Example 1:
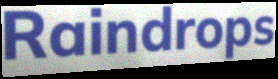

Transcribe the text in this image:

Raindrops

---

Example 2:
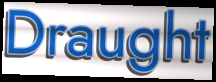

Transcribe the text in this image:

Draught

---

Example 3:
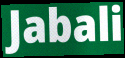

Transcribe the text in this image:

Jabali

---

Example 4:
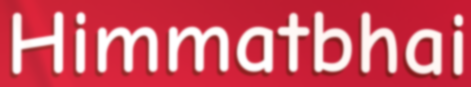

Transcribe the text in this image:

Himmatbhai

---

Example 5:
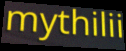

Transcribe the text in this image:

mythilii